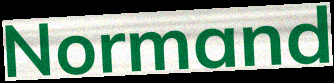
Normand